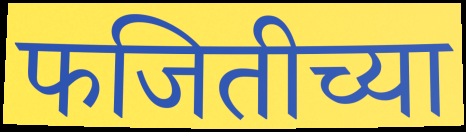
फजितीच्या